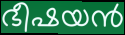
ഭീഷയൻ